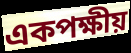
একপক্ষীয়